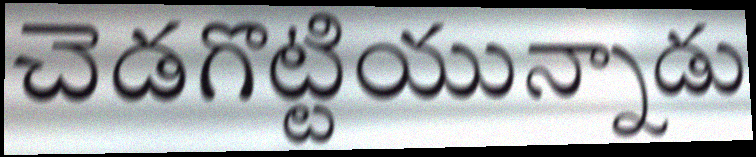
చెడగొట్టియున్నాడు